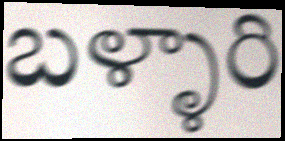
బళ్ళారి